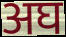
अघ